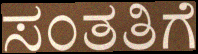
ಸಂತತಿಗೆ